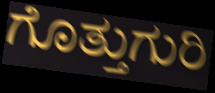
ಗೊತ್ತುಗುರಿ